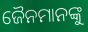
ଜୈନମାନଙ୍କୁ